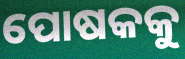
ପୋଷକକୁ